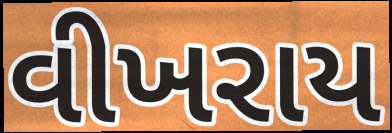
વીખરાય